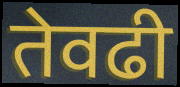
तेवढी